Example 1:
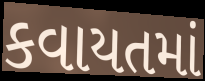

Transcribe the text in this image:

કવાયતમાં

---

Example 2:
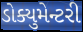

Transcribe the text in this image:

ડોક્યુમેન્ટરી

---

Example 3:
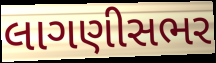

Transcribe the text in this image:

લાગણીસભર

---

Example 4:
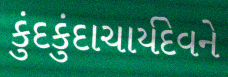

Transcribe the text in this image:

કુંદકુંદાચાર્યદેવને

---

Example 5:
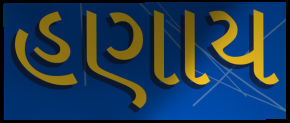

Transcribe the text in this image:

હણાય